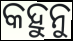
କହୁନୁ